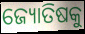
ଜ୍ୟୋତିଷକୁ